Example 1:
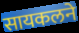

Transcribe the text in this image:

सायकलने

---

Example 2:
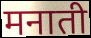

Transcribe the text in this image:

मनाती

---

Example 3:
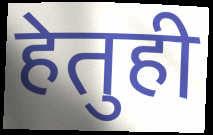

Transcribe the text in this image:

हेतुही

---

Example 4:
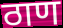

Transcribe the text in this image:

ठाण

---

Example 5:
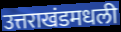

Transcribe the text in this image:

उत्तराखंडमधली